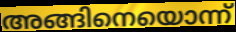
അങ്ങിനെയൊന്ന്